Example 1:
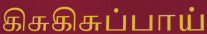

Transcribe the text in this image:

கிசுகிசுப்பாய்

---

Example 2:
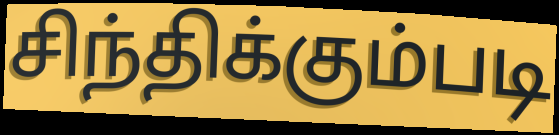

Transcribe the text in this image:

சிந்திக்கும்படி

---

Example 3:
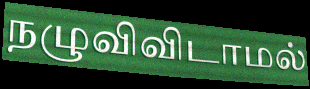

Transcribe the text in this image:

நழுவிவிடாமல்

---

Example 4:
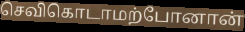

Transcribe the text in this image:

செவிகொடாமற்போனான்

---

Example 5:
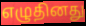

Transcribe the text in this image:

எழுதினது